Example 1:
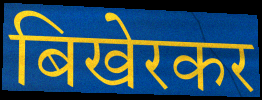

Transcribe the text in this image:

बिखेरकर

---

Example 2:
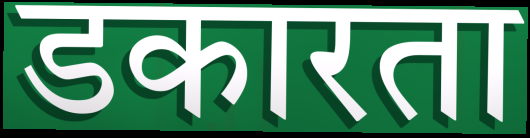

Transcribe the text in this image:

डकारता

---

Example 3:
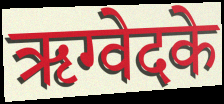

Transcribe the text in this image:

ऋग्वेदके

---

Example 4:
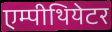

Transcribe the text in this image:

एम्पीथियेटर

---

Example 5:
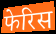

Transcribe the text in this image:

फेरिस